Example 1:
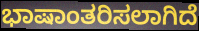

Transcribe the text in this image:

ಭಾಷಾಂತರಿಸಲಾಗಿದೆ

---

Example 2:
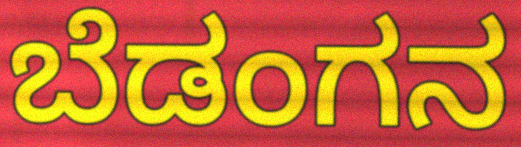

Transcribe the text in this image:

ಬೆಡಂಗನ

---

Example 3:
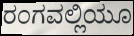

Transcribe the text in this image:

ರಂಗವಲ್ಲಿಯೂ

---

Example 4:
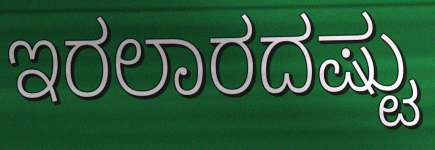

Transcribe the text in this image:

ಇರಲಾರದಷ್ಟು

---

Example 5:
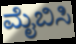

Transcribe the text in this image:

ಮೈಬಿಸಿ